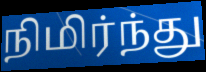
நிமிர்ந்து